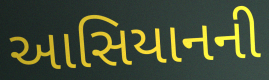
આસિયાનની